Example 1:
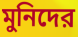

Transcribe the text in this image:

মুনিদের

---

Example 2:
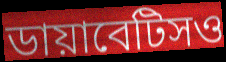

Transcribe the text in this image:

ডায়াবেটিসও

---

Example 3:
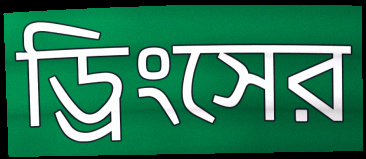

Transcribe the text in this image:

ড্রিংসের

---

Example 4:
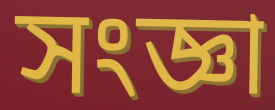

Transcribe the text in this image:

সংজ্ঞা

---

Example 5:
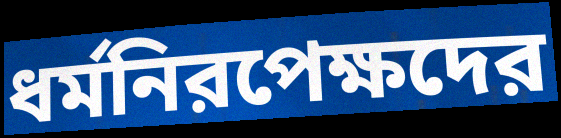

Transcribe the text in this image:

ধর্মনিরপেক্ষদের